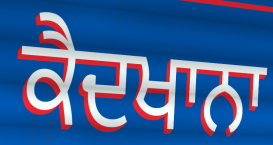
ਕੈਦਖਾਨਾ